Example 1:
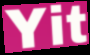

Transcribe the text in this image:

Yit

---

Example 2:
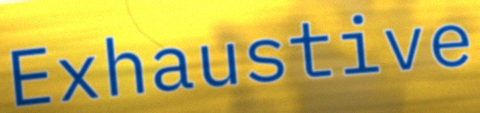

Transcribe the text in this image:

Exhaustive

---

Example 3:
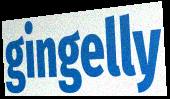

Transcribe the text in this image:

gingelly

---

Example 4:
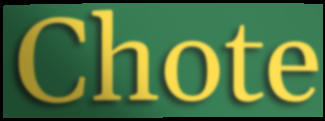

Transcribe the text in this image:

Chote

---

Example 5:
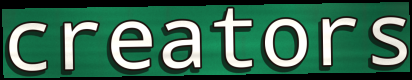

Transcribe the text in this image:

creators